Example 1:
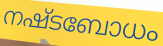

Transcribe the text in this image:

നഷ്ടബോധം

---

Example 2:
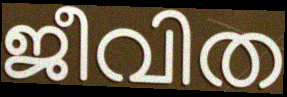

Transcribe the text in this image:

ജീവിത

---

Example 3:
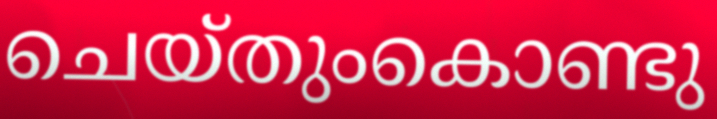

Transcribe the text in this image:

ചെയ്തുംകൊണ്ടു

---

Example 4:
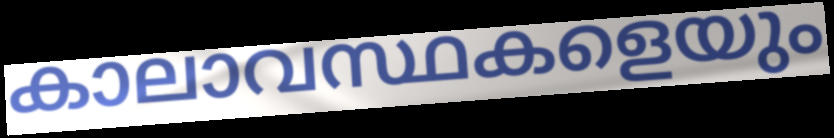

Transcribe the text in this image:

കാലാവസ്ഥകളെയും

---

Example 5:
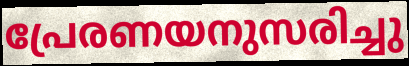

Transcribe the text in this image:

പ്രേരണയനുസരിച്ചു